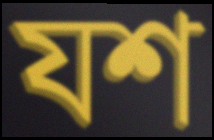
যশ